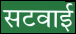
सटवाई